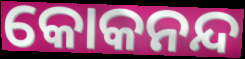
କୋକନନ୍ଦ